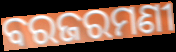
ବରଜରମଣୀ